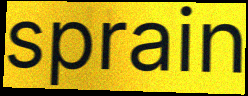
sprain